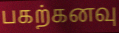
பகற்கனவு